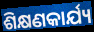
ଶିକ୍ଷଣକାର୍ଯ୍ୟ